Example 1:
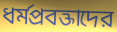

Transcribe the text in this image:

ধর্মপ্রবক্তাদের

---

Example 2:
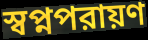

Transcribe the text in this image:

স্বপ্নপরায়ণ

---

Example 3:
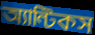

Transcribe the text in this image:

অ্যান্টিকস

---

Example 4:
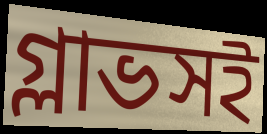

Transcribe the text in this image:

গ্লাভসই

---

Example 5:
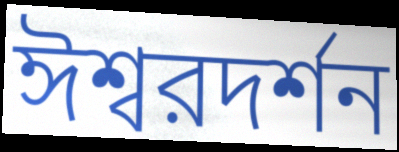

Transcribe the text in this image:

ঈশ্বরদর্শন